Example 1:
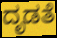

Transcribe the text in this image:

ದೃಡತೆ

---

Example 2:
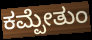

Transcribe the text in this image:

ಕಮ್ಪೇತುಂ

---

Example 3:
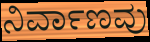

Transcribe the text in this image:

ನಿರ್ವಾಣವು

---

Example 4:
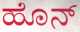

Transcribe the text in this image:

ಹೊನ್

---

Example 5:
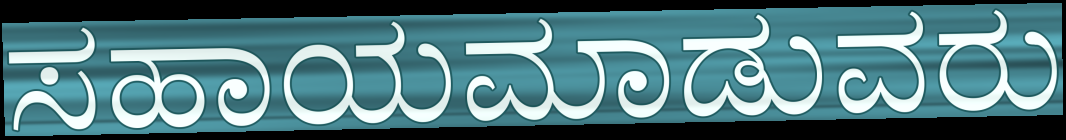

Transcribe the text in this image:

ಸಹಾಯಮಾಡುವರು